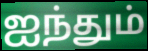
ஐந்தும்